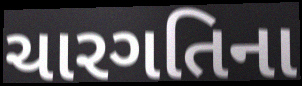
ચારગતિના